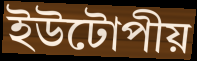
ইউটোপীয়